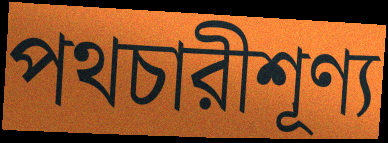
পথচারীশূণ্য